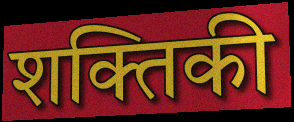
शक्तिकी